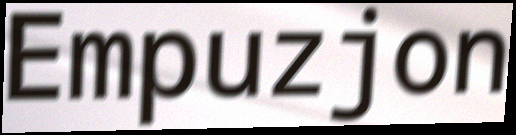
Empuzjon